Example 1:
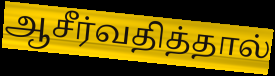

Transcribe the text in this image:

ஆசீர்வதித்தால்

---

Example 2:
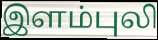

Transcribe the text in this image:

இளம்புலி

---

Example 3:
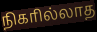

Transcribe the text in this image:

நிகரில்லாத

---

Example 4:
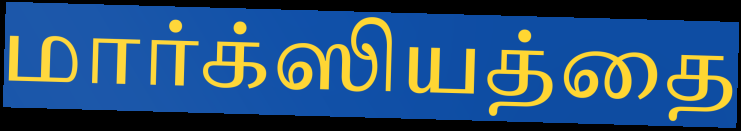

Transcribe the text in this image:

மார்க்ஸியத்தை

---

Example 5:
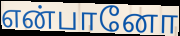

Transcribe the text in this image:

என்பானோ